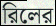
রিলের